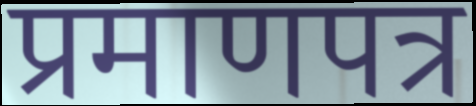
प्रमाणपत्र